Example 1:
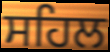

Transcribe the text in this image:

ਸਹਿਲ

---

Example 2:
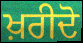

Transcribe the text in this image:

ਖ਼ਰੀਦੋ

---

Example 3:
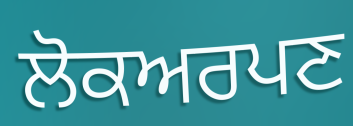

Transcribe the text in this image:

ਲੋਕਅਰਪਣ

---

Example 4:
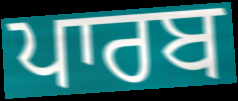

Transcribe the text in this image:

ਪਾਰਬ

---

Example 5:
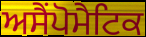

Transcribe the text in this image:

ਅਸੈਂਪੋਮੈਟਿਕ